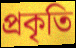
প্রকৃতি